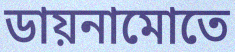
ডায়নামোতে